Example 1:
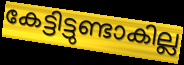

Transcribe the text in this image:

കേട്ടിട്ടുണ്ടാകില്ല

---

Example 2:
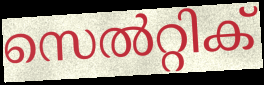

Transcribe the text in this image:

സെൽറ്റിക്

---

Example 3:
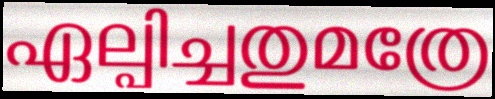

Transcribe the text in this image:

ഏല്പിച്ചതുമത്രേ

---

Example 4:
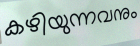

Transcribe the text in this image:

കഴിയുന്നവനും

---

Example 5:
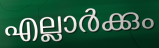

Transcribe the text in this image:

എല്ലാർക്കും